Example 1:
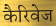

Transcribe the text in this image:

कैरिवेज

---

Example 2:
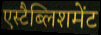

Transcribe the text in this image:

एस्टैब्लिशमेंट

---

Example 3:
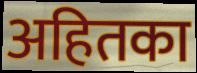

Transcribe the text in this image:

अहितका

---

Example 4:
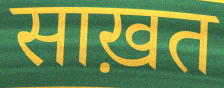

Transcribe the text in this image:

साख़त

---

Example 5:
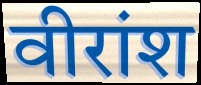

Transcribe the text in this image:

वीरांश